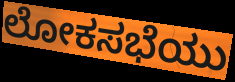
ಲೋಕಸಭೆಯು